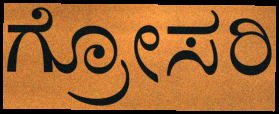
ಗ್ರೋಸರಿ